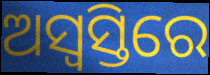
ଅସ୍ୱସ୍ତିରେ